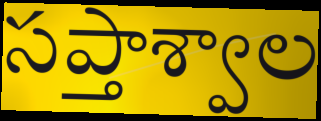
సప్తాశ్వాల